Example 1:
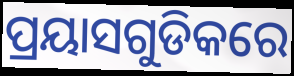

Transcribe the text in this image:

ପ୍ରୟାସଗୁଡିକରେ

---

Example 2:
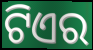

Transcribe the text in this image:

ଟିଏର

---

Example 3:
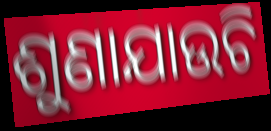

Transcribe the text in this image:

ଶୁଣାଯାଉଚି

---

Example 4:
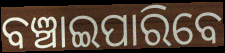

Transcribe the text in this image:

ବଞ୍ଚାଇପାରିବେ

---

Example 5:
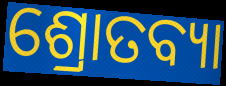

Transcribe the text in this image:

ଶ୍ରୋତବ୍ୟା